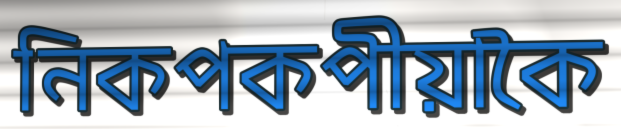
নিকপকপীয়াকৈ